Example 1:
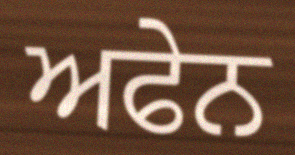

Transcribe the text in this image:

ਅਫੇਨ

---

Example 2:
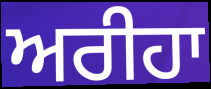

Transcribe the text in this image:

ਅਰੀਹਾ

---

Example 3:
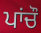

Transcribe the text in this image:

ਪਾਂਚੌ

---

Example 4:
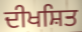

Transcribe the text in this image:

ਦੀਖਸ਼ਿਤ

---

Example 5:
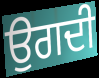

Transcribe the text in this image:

ਉਗਦੀ